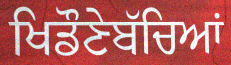
ਖਿਡੌਣੇਬੱਚਿਆਂ